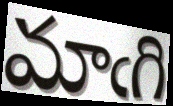
మాఁగి